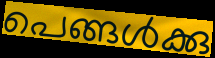
പെങ്ങൾക്കു